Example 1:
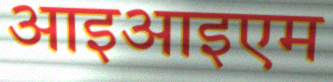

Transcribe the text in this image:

आइआइएम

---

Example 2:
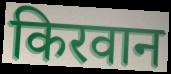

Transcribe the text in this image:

किरवान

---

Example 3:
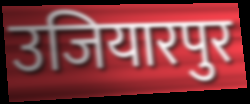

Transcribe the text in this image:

उजियारपुर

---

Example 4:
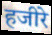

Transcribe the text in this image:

हजीरे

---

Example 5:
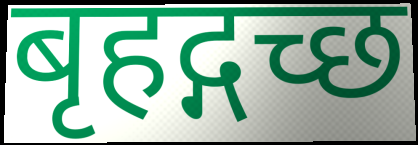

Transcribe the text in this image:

बृहद्गच्छ